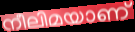
നീലിമയാണ്